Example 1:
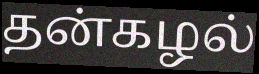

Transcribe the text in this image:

தன்கழல்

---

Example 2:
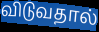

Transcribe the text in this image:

விடுவதால்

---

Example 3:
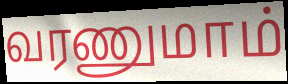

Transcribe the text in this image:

வரணுமாம்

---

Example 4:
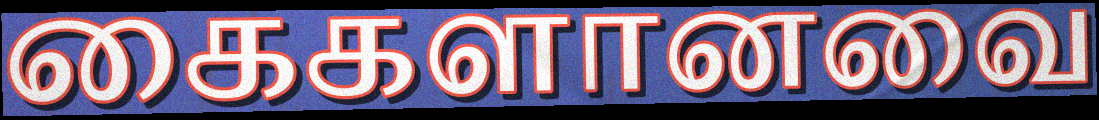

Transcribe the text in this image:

கைகளானவை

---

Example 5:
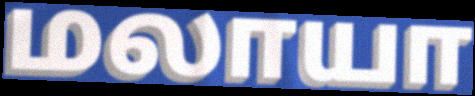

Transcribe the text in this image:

மலாயா